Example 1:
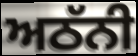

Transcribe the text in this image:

ਅਠੱਨੀ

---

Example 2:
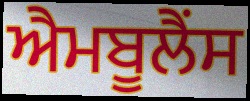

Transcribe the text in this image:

ਐਮਬੂਲੈਂਸ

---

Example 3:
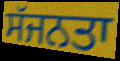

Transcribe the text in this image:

ਸੱਜਨਤਾ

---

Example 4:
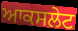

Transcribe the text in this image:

ਆਕਸਲੇਟ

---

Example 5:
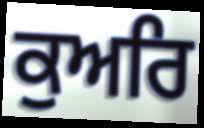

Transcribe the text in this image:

ਕੁਅਰਿ